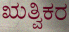
ಋತ್ವಿಕರ